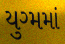
યુગ્મમાં